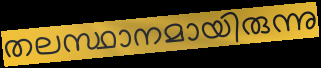
തലസ്ഥാനമായിരുന്നു